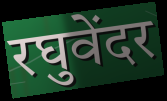
रघुवेंदर